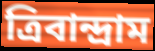
ত্রিবান্দ্রাম